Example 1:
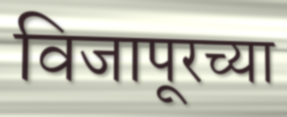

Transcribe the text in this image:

विजापूरच्या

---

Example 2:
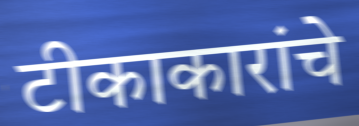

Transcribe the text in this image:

टीकाकारांचे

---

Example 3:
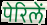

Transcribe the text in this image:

पेरिलें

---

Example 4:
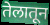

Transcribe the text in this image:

तेलातून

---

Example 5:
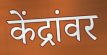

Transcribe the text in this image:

केंद्रांवर